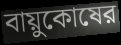
বায়ুকোষের